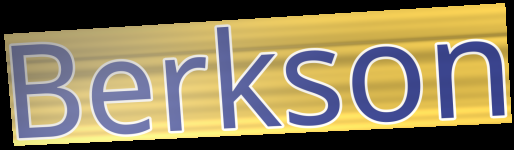
Berkson